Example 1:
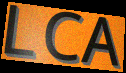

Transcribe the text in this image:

LCA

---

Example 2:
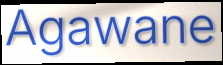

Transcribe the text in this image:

Agawane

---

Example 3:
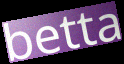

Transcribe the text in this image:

betta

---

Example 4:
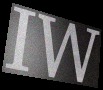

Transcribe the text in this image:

IW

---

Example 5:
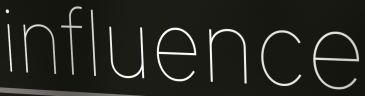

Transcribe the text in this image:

influence